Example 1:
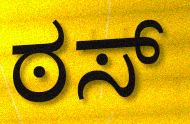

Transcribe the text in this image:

ಠಸ್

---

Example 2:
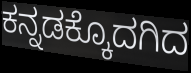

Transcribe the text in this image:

ಕನ್ನಡಕ್ಕೊದಗಿದ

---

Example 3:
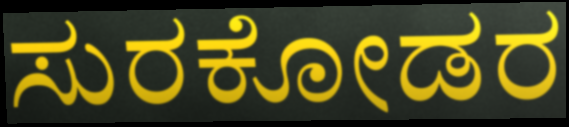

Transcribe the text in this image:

ಸುರಕೋಡರ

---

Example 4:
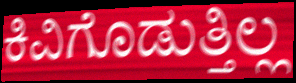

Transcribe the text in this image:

ಕಿವಿಗೊಡುತ್ತಿಲ್ಲ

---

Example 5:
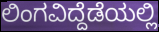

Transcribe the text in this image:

ಲಿಂಗವಿದ್ದೆಡೆಯಲ್ಲಿ